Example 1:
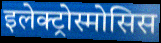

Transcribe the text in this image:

इलेक्ट्रोस्मोसिस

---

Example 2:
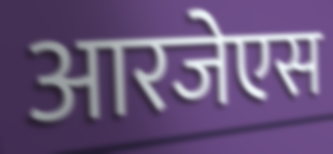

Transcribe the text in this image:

आरजेएस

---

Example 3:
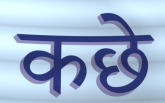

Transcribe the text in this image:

कछे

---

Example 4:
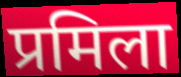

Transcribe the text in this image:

प्रमिला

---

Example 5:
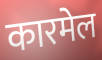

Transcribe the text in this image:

कारमेल